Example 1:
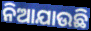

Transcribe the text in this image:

ନିଆଯାଉଛି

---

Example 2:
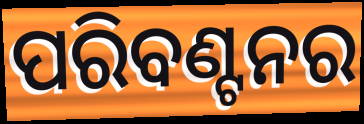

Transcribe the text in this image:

ପରିବଣ୍ଟନର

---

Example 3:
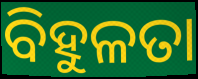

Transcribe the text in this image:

ବିହୁଳତା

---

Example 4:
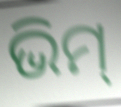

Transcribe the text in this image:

ଭିମ୍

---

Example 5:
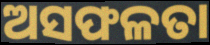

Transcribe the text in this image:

ଅସଫଳତା